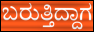
ಬರುತ್ತಿದ್ದಾಗ